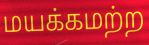
மயக்கமற்ற